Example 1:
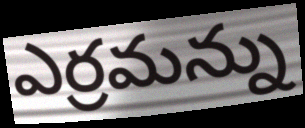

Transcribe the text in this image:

ఎర్రమన్ను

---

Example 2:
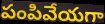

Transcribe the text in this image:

పంపివేయగా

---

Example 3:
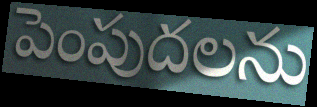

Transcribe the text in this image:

పెంపుదలను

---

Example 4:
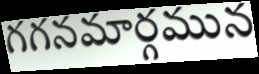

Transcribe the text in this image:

గగనమార్గమున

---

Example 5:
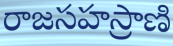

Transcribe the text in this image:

రాజసహస్రాణి